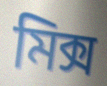
মিক্স